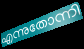
എന്നുതോന്നി